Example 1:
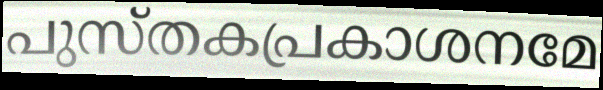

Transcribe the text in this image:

പുസ്തകപ്രകാശനമേ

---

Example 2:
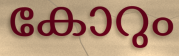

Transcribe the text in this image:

കോറും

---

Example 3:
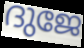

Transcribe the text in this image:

ദുജേ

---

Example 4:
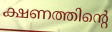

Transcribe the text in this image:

ക്ഷണത്തിന്റെ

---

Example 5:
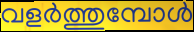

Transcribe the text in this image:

വളർത്തുമ്പോൾ